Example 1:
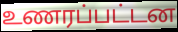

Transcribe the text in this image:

உணரப்பட்டன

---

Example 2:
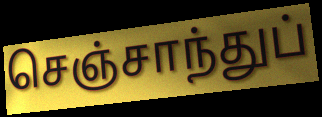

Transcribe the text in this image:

செஞ்சாந்துப்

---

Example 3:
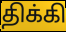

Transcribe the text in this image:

திக்கி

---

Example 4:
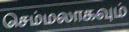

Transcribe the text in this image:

செம்மலாகவும்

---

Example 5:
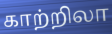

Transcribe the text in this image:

காற்றிலா